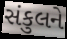
સંકુલને